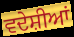
ਵਦੇਸ਼ੀਆਂ